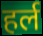
हर्ल